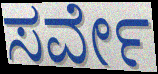
ಸರ್ವೇ